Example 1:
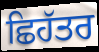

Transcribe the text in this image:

ਛਿਹੱਤਰ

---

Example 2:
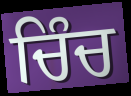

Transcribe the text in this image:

ਚਿੰਚ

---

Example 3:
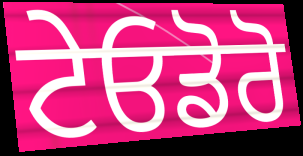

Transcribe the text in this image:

ਟੇਓਡੋਰੋ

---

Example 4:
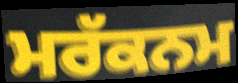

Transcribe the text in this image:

ਮਰੱਕਨਮ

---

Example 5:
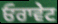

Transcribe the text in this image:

ਓਰਾਵੇਟ